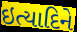
ઇત્‍યાદિને